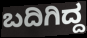
ಬದಿಗಿದ್ದ